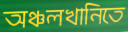
অঞ্চলখানিতে